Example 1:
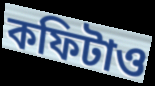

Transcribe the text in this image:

কফিটাও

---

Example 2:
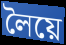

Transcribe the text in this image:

লৈয়ে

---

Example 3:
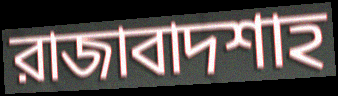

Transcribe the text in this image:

রাজাবাদশাহ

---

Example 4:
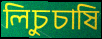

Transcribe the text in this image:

লিচুচাষি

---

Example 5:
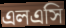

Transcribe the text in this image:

এলএসি